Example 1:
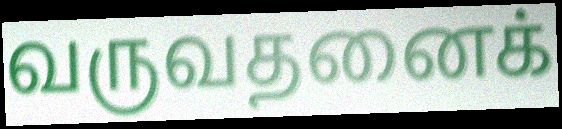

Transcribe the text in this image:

வருவதனைக்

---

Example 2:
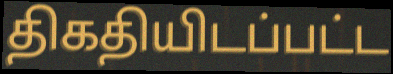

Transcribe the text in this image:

திகதியிடப்பட்ட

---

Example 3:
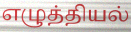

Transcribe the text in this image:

எழுத்தியல்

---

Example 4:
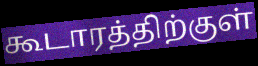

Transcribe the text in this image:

கூடாரத்திற்குள்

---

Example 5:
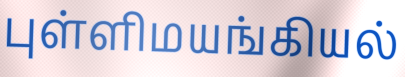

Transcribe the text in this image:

புள்ளிமயங்கியல்